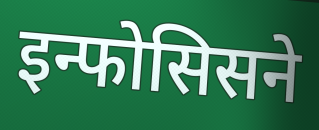
इन्फोसिसने